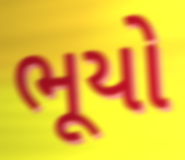
ભૂયો